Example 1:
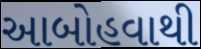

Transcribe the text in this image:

આબોહવાથી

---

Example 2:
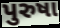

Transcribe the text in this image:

પુરુષા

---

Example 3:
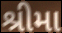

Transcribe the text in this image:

શ્રીમા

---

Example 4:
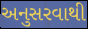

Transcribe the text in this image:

અનુસરવાથી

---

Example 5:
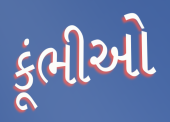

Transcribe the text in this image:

કૂંભીઓ